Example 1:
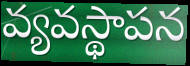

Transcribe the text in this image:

వ్యవస్థాపన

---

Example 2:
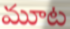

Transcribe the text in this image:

మూట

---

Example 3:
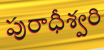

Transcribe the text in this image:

పురాధీశ్వరి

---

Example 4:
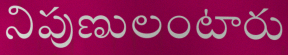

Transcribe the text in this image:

నిపుణులంటారు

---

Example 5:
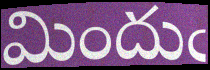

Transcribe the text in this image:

మిందుఁ